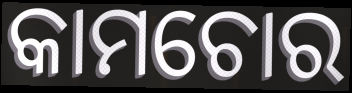
କାମଚୋର